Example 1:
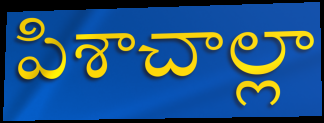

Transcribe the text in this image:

పిశాచాల్లా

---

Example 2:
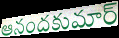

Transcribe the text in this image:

ఆనందకుమార్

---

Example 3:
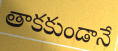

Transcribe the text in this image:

తాకకుండానే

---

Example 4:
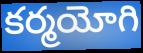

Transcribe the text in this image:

కర్మయోగి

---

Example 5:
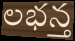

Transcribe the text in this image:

లభన్త